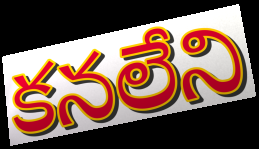
కనలేని